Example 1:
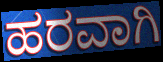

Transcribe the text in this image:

ಹರವಾಗಿ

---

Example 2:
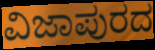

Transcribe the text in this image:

ವಿಜಾಪುರದ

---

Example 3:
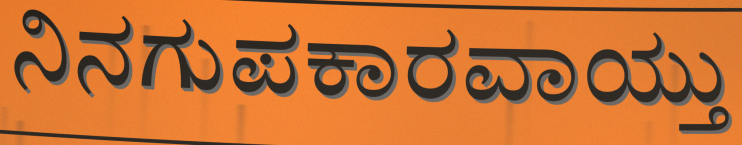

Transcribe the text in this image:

ನಿನಗುಪಕಾರವಾಯ್ತು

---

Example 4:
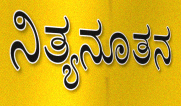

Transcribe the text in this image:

ನಿತ್ಯನೂತನ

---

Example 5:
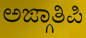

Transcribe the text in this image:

ಅಙ್ಗಾತಿಪಿ